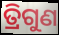
ତ୍ରିଗୁଣ